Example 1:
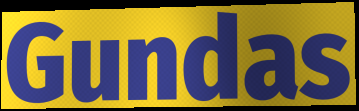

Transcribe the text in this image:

Gundas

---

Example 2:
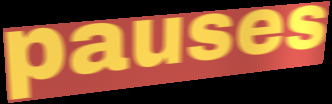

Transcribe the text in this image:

pauses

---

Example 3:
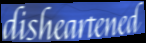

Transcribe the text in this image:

disheartened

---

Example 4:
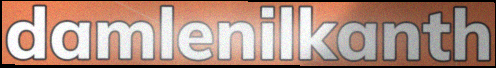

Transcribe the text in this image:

damlenilkanth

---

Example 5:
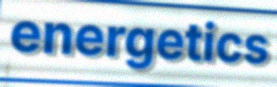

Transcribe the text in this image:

energetics